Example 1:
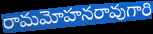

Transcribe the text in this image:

రామమోహనరావుగారి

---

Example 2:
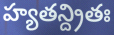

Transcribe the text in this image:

హ్యతన్ద్రితః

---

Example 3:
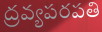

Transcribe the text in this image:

ద్రవ్యపరపతి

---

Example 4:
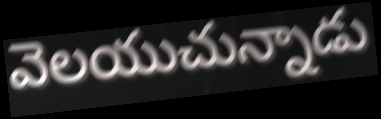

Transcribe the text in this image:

వెలయుచున్నాడు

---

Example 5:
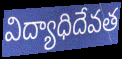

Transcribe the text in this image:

విద్యాధిదేవత